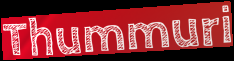
Thummuri